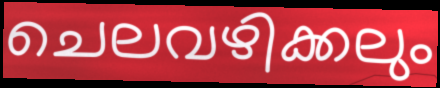
ചെലവഴിക്കലും